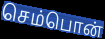
செம்பொன்